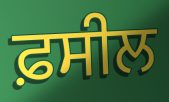
ਫ਼ਸੀਲ